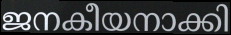
ജനകീയനാക്കി